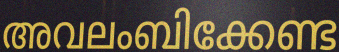
അവലംബിക്കേണ്ട